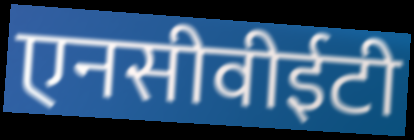
एनसीवीईटी